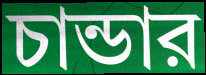
চান্ডার